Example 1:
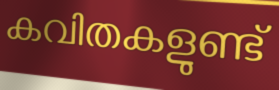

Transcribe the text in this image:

കവിതകളുണ്ട്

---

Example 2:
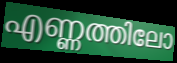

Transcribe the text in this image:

എണ്ണത്തിലോ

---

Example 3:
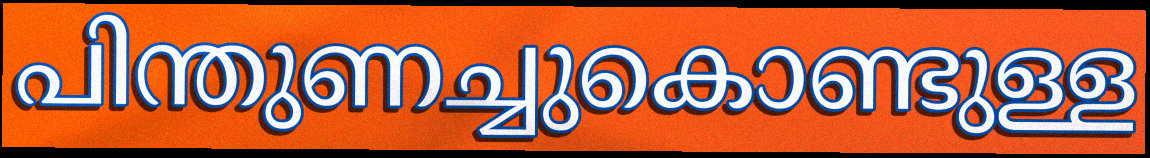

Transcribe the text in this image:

പിന്തുണച്ചുകൊണ്ടുള്ള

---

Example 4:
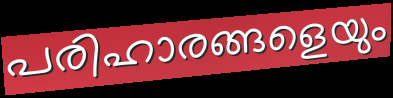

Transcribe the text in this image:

പരിഹാരങ്ങളെയും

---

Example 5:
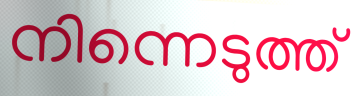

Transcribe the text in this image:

നിന്നെടുത്ത്